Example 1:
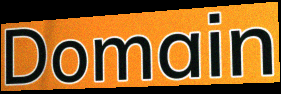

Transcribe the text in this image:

Domain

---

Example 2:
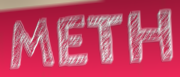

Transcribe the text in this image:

METH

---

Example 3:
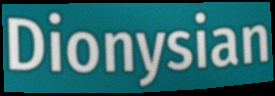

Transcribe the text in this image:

Dionysian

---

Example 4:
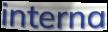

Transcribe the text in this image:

interna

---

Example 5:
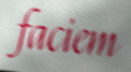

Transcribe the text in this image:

faciem